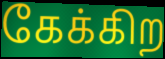
கேக்கிற